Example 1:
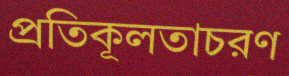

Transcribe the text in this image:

প্রতিকূলতাচরণ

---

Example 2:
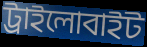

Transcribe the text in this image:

ট্রাইলোবাইট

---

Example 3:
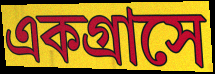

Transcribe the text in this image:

একগ্রাসে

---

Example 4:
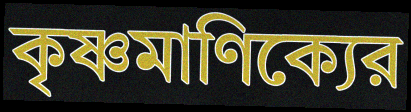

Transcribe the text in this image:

কৃষ্ণমাণিক্যের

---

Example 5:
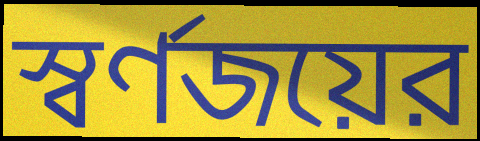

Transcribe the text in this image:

স্বর্ণজয়ের